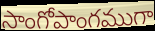
సాంగోపాంగముగా